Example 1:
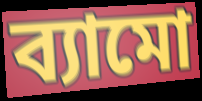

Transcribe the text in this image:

ব্যামো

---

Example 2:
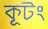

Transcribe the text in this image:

কূটং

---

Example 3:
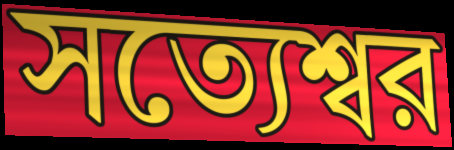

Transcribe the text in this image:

সত্যেশ্বর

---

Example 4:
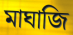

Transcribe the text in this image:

মাঘাজি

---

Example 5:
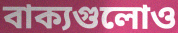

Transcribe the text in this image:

বাক্যগুলোও